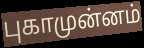
புகாமுன்னம்